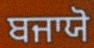
ਬਜਾਯੋ